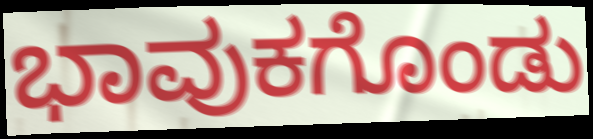
ಭಾವುಕಗೊಂಡು